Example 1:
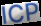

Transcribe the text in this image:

ICP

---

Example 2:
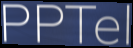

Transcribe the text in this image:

PPTel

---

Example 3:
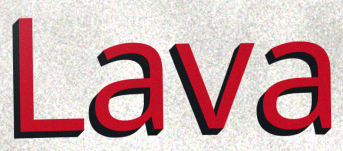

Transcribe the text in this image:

Lava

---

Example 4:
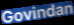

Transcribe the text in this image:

Govindan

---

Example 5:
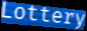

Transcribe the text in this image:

Lottery